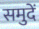
समुदें